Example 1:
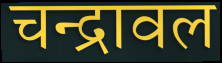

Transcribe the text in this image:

चन्द्रावल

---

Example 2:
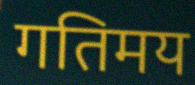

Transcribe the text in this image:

गतिमय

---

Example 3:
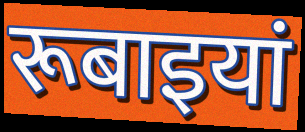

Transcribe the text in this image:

रूबाइयां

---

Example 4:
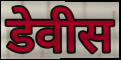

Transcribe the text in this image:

डेवीस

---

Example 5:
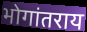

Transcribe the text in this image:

भोगांतराय